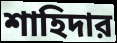
শাহিদার